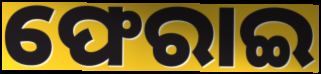
ଫେରାଇ